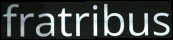
fratribus